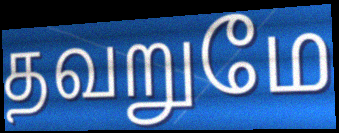
தவறுமே